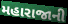
મહારાજાની